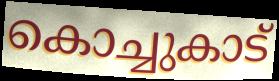
കൊച്ചുകാട്